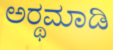
ಅರ್‍ಥಮಾಡಿ